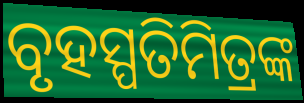
ବୃହସ୍ପତିମିତ୍ରଙ୍କ